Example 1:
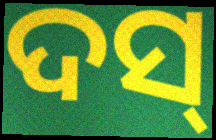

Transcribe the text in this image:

ଦସ୍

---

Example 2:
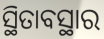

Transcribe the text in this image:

ସ୍ଥିତାବସ୍ଥାର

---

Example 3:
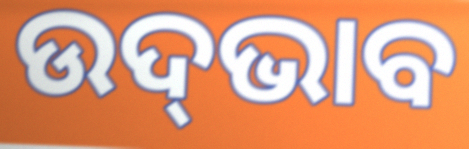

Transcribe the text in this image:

ଉଦ୍‍ଭାବ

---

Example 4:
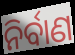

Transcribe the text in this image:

ନିର୍ବାଣ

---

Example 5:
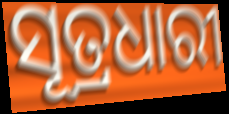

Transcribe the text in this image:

ସୂତ୍ରଧାରୀ